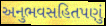
અનુભવસહિતપણું